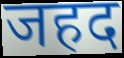
जहद